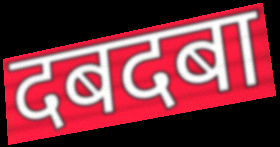
दबदबा